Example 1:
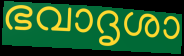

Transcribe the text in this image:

ഭവാദൃശാ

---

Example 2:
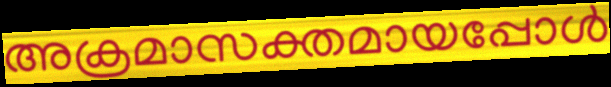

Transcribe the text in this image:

അക്രമാസക്തമായപ്പോൾ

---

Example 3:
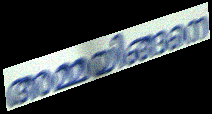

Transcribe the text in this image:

അമ്മയിങ്ങനെ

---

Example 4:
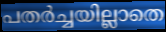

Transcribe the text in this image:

പതർച്ചയില്ലാതെ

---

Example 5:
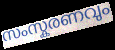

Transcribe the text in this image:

സംസ്കരണവും